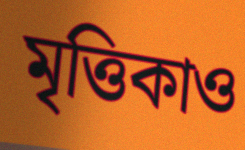
মৃত্তিকাও